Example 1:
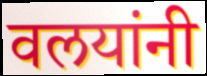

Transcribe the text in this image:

वलयांनी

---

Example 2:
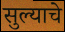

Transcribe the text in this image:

सुल्याचे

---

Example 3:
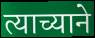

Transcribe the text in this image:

त्याच्याने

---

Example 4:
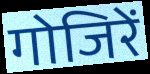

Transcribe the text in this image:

गोजिरें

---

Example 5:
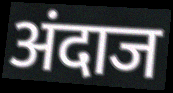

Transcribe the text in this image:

अंदाज